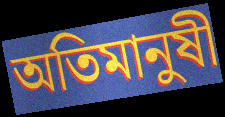
অতিমানুষী